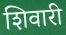
शिवारी